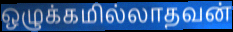
ஒழுக்கமில்லாதவன்